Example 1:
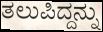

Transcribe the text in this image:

ತಲುಪಿದ್ದನ್ನು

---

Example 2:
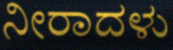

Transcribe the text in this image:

ನೀರಾದಳು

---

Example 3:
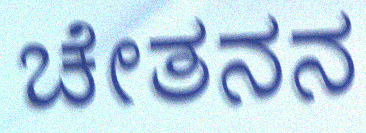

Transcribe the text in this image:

ಚೇತನನ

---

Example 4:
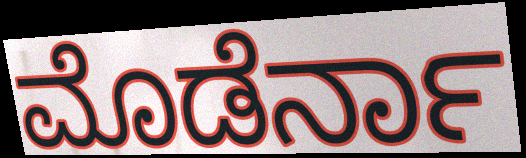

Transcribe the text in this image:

ಮೊಡೆರ್ನಾ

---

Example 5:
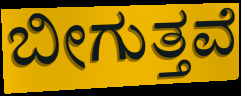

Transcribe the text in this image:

ಬೀಗುತ್ತವೆ